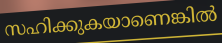
സഹിക്കുകയാണെങ്കിൽ